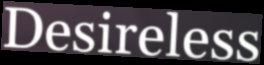
Desireless